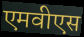
एमवीएस